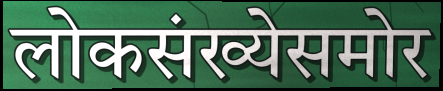
लोकसंख्येसमोर